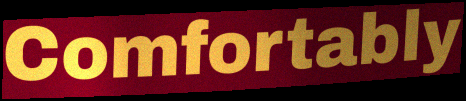
Comfortably